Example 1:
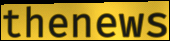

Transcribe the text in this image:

thenews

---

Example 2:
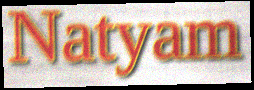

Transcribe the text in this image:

Natyam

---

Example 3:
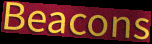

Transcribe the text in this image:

Beacons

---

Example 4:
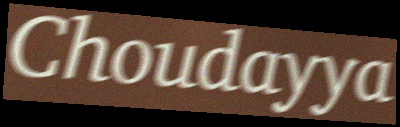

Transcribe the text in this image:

Choudayya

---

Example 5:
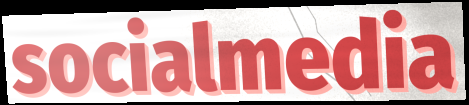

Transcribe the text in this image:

socialmedia